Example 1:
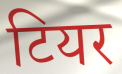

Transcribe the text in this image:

टियर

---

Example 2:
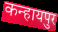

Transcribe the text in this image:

कन्हायपुर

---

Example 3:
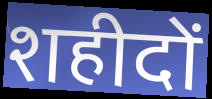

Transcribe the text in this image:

शहीदों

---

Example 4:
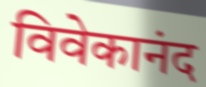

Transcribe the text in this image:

विवेकानंद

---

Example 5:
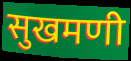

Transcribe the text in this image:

सुखमणी